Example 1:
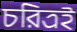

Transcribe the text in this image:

চরিত্রই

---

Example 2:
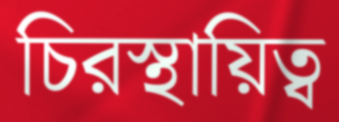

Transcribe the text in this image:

চিরস্থায়িত্ব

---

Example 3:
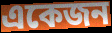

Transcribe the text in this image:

একেজন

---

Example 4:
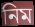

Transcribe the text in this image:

নিম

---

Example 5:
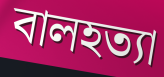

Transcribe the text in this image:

বালহত্যা